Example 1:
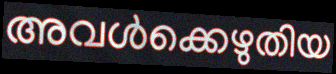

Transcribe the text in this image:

അവൾക്കെഴുതിയ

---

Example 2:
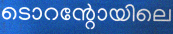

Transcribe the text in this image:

ടൊറന്റോയിലെ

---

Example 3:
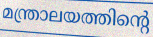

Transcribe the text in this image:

മന്ത്രാലയത്തിന്റെ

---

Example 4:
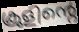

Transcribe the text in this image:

ക്രുളിന്റെ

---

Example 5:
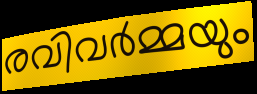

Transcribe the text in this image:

രവിവർമ്മയും